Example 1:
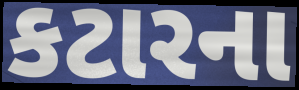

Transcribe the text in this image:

કટારના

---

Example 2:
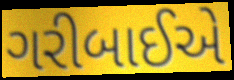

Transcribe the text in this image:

ગરીબાઈએ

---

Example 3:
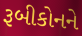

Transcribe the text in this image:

રૂબીકોનને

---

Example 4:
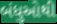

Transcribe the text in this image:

બંધુઓથી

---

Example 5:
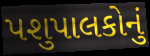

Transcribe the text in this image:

પશુપાલકોનું